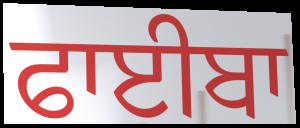
ਫਾਈਬਾ